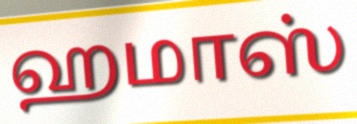
ஹமாஸ்